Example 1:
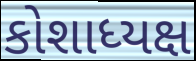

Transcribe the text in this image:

કોશાધ્યક્ષ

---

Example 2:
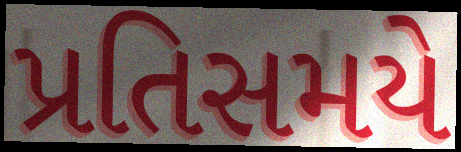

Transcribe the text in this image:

પ્રતિસમયે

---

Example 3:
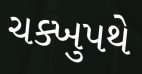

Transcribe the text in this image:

ચક્ખુપથે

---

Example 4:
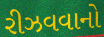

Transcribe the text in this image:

રીઝવવાનો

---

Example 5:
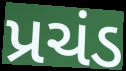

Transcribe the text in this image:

પ્રચંડ